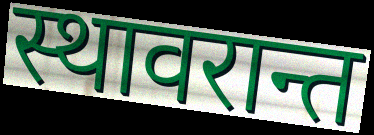
स्थावरान्त